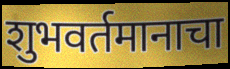
शुभवर्तमानाचा